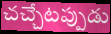
చచ్చేటప్పుడు